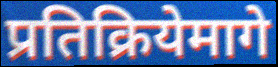
प्रतिक्रियेमागे